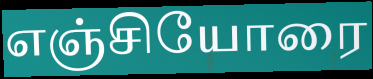
எஞ்சியோரை